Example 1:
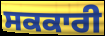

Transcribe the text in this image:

ਸਕਕਾਰੀ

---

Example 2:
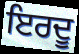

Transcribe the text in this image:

ਇਰਦੂ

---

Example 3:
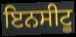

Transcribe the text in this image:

ਇਨਸੀਟੂ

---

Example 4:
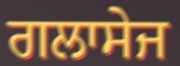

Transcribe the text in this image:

ਗਲਾਸੇਜ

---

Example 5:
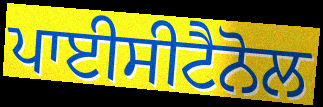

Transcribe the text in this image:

ਪਾਈਸੀਟੈਨੋਲ